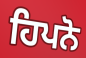
ਹਿਪਨੋ